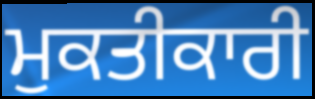
ਮੁਕਤੀਕਾਰੀ